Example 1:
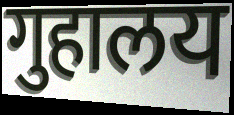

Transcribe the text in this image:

गुहालय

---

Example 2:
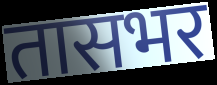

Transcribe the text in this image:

तासभर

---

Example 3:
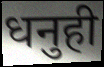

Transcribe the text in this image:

धनुही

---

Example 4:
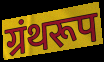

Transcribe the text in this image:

ग्रंथरूप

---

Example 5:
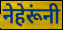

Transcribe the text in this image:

नेहेरूंनी